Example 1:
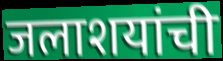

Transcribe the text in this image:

जलाशयांची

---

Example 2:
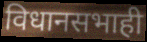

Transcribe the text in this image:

विधानसभाही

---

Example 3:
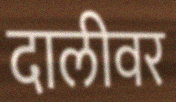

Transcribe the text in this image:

दालीवर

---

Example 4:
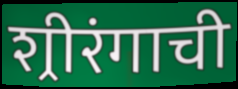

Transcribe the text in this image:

श्रीरंगाची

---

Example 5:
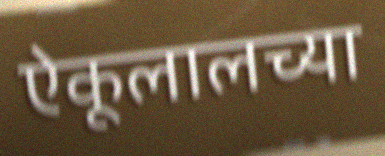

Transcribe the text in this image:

ऐकूलालच्या